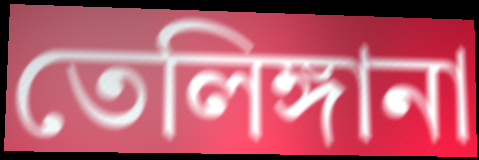
তেলিঙ্গানা